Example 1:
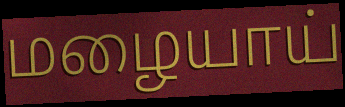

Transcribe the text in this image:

மழையாய்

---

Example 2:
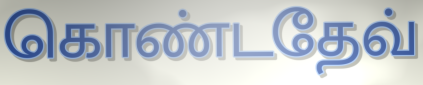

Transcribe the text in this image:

கொண்டதேவ்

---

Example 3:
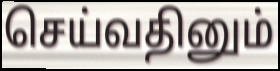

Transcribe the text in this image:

செய்வதினும்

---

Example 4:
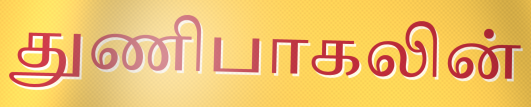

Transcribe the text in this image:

துணிபாகலின்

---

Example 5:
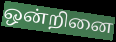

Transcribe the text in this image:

ஒன்றினை